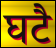
घटै